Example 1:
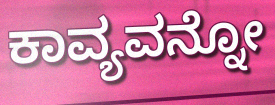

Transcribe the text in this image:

ಕಾವ್ಯವನ್ನೋ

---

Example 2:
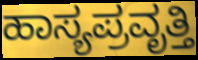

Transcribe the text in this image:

ಹಾಸ್ಯಪ್ರವೃತ್ತಿ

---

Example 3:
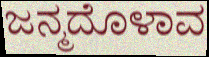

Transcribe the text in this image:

ಜನ್ಮದೊಳಾವ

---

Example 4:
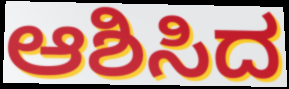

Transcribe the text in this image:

ಆಶಿಸಿದ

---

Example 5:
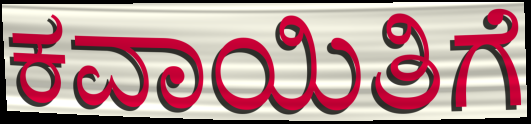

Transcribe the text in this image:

ಕವಾಯಿತಿಗೆ